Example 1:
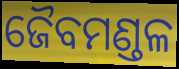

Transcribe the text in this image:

ଜୈବମଣ୍ଡଳ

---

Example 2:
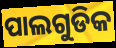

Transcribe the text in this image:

ପାଲଗୁଡିକ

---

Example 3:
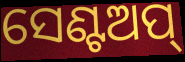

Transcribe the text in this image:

ସେଣ୍ଟଅପ୍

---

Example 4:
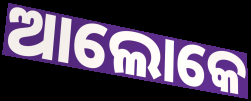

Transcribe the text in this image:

ଆଲୋକେ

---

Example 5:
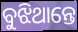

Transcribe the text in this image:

ବୁଝିଥାନ୍ତେ